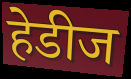
हेडीज